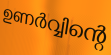
ഉണർവ്വിന്റെ